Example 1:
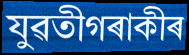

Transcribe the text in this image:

যুৱতীগৰাকীৰ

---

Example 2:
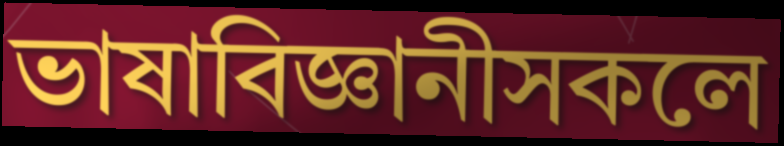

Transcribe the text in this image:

ভাষাবিজ্ঞানীসকলে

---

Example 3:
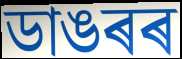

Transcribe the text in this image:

ডাঙৰৰ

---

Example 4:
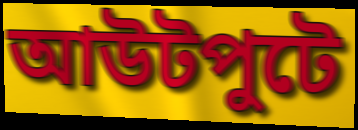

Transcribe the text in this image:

আউটপুটে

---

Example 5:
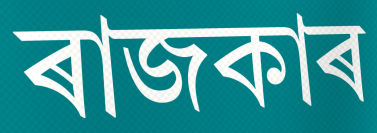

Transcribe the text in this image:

ৰাজকাৰ